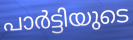
പാർട്ടിയുടെ